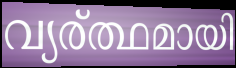
വ്യര്ത്ഥമായി